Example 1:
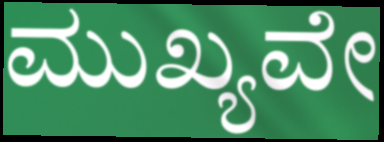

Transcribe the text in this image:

ಮುಖ್ಯವೇ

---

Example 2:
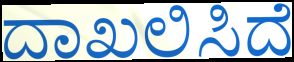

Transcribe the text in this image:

ದಾಖಲಿಸಿದೆ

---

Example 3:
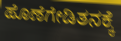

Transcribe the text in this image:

ಹೊಣೆಗೇಡಿತನಕ್ಕೆ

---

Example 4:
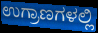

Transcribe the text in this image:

ಉಗ್ರಾಣಗಳಲ್ಲಿ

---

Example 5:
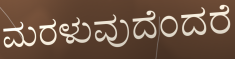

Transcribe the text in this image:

ಮರಳುವುದೆಂದರೆ